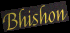
Bhishon